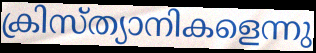
ക്രിസ്ത്യാനികളെന്നു